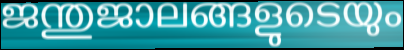
ജന്തുജാലങ്ങളുടെയും